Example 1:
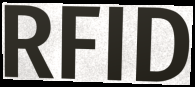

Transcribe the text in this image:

RFID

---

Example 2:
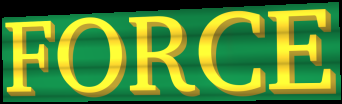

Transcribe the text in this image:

FORCE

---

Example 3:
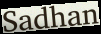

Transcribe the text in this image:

Sadhan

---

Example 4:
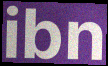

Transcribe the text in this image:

ibn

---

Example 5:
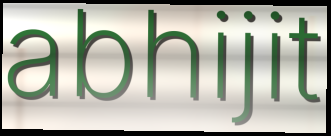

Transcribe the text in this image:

abhijit